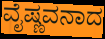
ವೈಷ್ಣವನಾದ